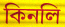
কিনলি